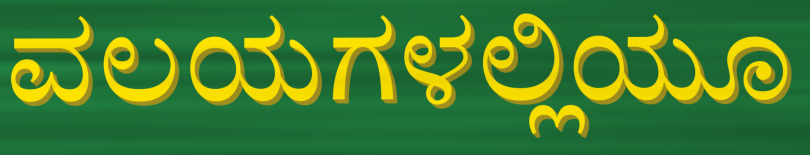
ವಲಯಗಳಲ್ಲಿಯೂ